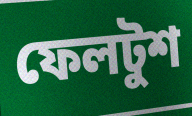
ফেলটুশ